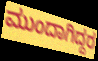
ಮುಂದಾಗಿದ್ದರ